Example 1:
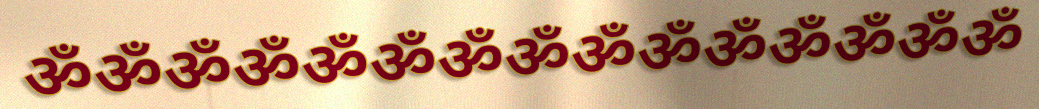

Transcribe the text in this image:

ॐॐॐॐॐॐॐॐॐॐॐॐॐॐॐ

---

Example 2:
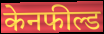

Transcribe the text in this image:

केनफील्ड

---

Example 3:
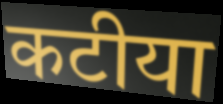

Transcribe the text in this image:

कटीया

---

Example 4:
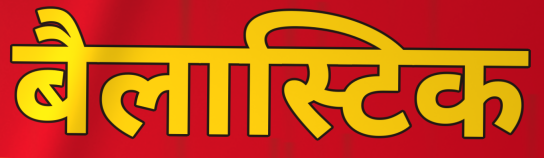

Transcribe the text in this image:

बैलास्टिक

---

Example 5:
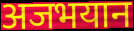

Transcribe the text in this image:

अजभयान